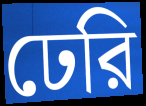
ঢেরি